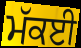
ਮੱਕਈ